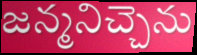
జన్మనిచ్చెను